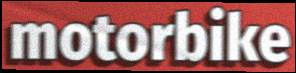
motorbike